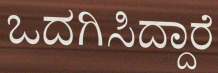
ಒದಗಿಸಿದ್ದಾರೆ